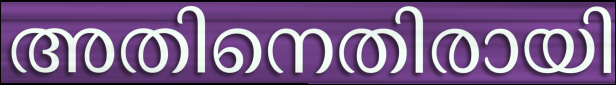
അതിനെതിരായി